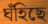
ঘঁহিছে